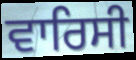
ਵਾਰਿਸੀ